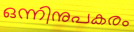
ഒന്നിനുപകരം